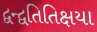
દ્વન્દ્વતિતિક્ષયા